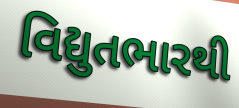
વિદ્યુતભારથી